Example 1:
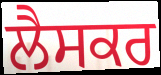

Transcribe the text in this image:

ਲੈਸਕਰ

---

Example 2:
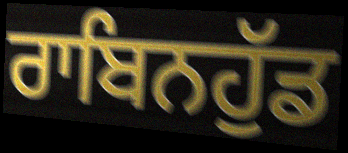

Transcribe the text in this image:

ਰਾਬਿਨਹੁੱਡ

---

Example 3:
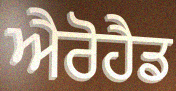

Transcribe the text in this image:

ਐਰੋਹੈਡ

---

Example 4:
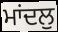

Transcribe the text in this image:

ਮਾਂਦਲੁ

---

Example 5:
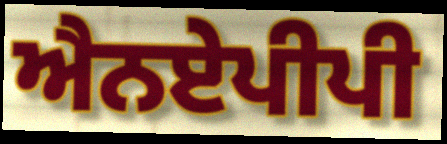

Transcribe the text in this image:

ਐਨਏਪੀਪੀ